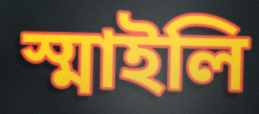
স্মাইলি